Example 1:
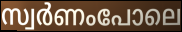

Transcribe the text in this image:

സ്വർണംപോലെ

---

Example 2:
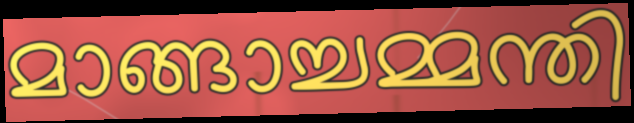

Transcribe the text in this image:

മാങ്ങാച്ചമ്മന്തി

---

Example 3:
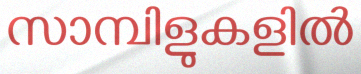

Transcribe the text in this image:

സാമ്പിളുകളിൽ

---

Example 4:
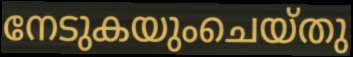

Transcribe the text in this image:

നേടുകയുംചെയ്തു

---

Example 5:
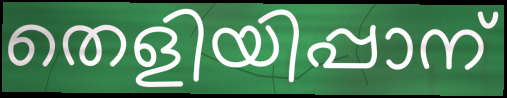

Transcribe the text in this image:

തെളിയിപ്പാന്